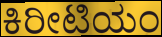
ಕಿರೀಟಿಯಂ